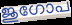
ജുഗോപ